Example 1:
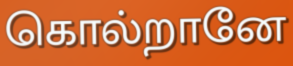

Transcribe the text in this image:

கொல்றானே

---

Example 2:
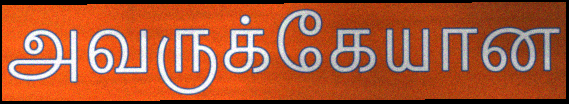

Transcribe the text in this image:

அவருக்கேயான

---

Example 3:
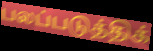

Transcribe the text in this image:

பலப்படுத்திக்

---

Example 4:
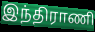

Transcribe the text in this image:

இந்திராணி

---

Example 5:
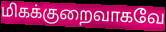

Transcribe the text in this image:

மிகக்குறைவாகவே